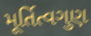
મૂર્તિત્વગુણ